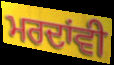
ਮਰਦਾਂਵੀ